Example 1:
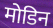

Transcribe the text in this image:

मोडिन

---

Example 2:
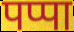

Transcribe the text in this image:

पप्‍पा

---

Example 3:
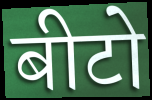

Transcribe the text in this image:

बीटो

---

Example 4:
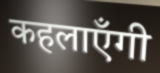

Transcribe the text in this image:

कहलाएँगी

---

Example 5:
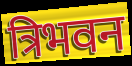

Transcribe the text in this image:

त्रिभवन